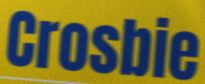
Crosbie